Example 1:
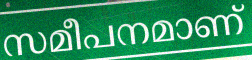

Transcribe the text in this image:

സമീപനമാണ്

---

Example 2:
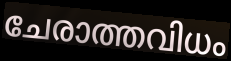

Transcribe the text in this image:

ചേരാത്തവിധം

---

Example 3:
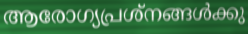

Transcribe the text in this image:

ആരോഗ്യപ്രശ്നങ്ങൾക്കു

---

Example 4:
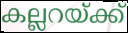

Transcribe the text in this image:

കല്ലറയ്ക്ക്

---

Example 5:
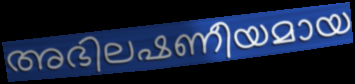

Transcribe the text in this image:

അഭിലഷണീയമായ